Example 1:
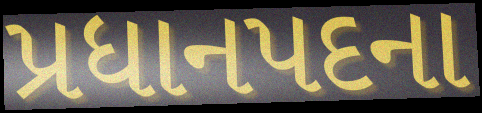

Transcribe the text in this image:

પ્રધાનપદના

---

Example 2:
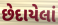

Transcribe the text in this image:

છેદાયેલાં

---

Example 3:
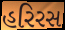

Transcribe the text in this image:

હરિરસ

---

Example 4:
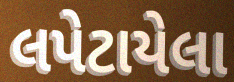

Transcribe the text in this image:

લપેટાયેલા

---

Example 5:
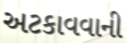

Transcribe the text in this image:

અટકાવવાની